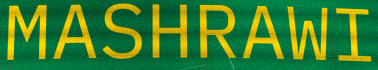
MASHRAWI